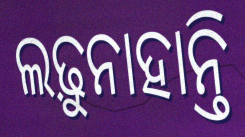
ଲଢ଼ୁନାହାନ୍ତି